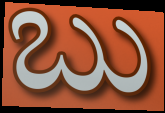
ಬು